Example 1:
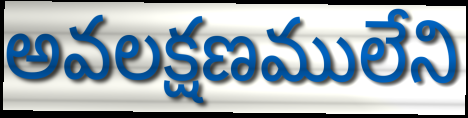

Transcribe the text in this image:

అవలక్షణములేని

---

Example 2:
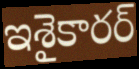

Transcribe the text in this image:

ఇశైకారర్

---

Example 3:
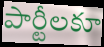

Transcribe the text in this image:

పార్టీలకూ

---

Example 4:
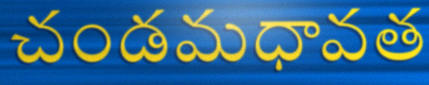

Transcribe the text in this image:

చండమధావత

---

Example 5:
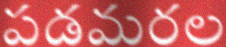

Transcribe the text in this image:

పడమరల